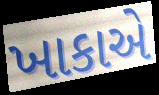
ખાકાએ